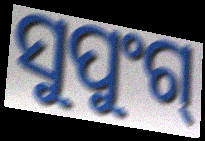
ସୁପୁଂଗ୍